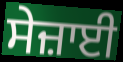
ਸੇਜ਼ਾਈ